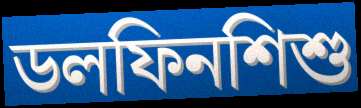
ডলফিনশিশু